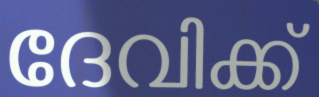
ദേവിക്ക്